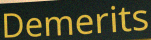
Demerits